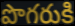
పొగరుకి